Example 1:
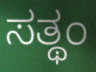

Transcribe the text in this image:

ಸತ್ಥಂ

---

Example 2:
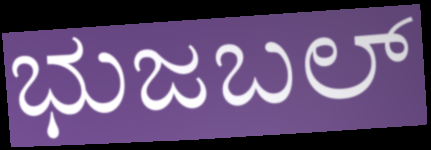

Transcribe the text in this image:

ಭುಜಬಲ್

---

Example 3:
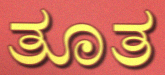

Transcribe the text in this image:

ತೂತ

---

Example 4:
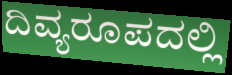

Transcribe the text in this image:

ದಿವ್ಯರೂಪದಲ್ಲಿ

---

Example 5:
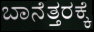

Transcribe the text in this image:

ಬಾನೆತ್ತರಕ್ಕೆ